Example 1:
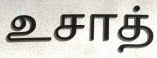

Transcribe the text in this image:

உசாத்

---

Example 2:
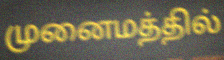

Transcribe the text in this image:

முனைமத்தில்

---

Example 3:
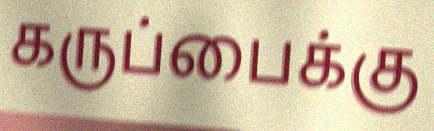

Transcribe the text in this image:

கருப்பைக்கு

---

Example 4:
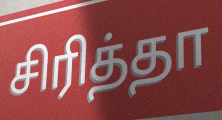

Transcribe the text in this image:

சிரித்தா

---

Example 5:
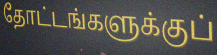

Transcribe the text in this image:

தோட்டங்களுக்குப்